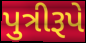
પુત્રીરૂપે